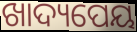
ଖାଦ୍ୟପେୟ